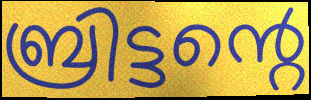
ബ്രിട്ടന്റെ